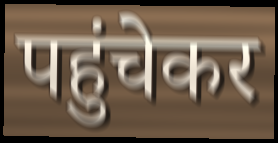
पहुंचेकर